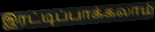
இரட்டிப்பாக்கலாம்